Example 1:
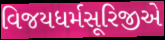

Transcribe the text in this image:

વિજયધર્મસૂરિજીએ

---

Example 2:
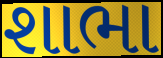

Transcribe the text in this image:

શાભા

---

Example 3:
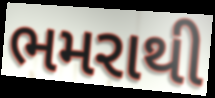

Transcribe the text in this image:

ભમરાથી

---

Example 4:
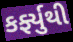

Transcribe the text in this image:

કર્ફ્યુથી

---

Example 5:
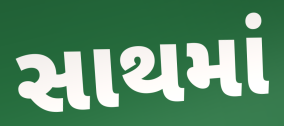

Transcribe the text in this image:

સાથમાં